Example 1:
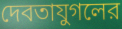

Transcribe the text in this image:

দেবতাযুগলের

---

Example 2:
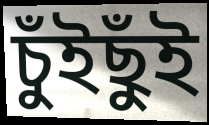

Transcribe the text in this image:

চুঁইছুঁই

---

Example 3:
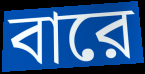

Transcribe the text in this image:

বারে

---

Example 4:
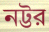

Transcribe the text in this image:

নট্টর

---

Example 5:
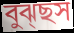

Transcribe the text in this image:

বুঝ্ছস